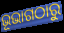
ଭୂଭାଗଠାରୁ